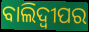
ବାଲିଦ୍ୱୀପର